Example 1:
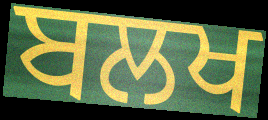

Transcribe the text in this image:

ਬਲਖ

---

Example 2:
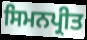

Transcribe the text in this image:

ਸਿਮਨਪ੍ਰੀਤ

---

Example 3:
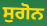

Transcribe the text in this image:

ਸੁਗੋਨ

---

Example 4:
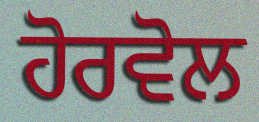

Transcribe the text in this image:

ਹੋਰਵੋਲ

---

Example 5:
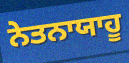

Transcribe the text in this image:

ਨੇਤਨਾਯਾਹੂ